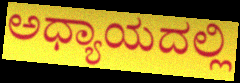
ಅಧ್ಯಾಯದಲ್ಲಿ